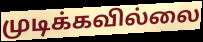
முடிக்கவில்லை